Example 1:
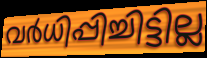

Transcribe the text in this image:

വർധിപ്പിച്ചിട്ടില്ല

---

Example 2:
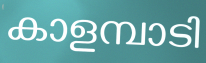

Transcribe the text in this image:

കാളമ്പാടി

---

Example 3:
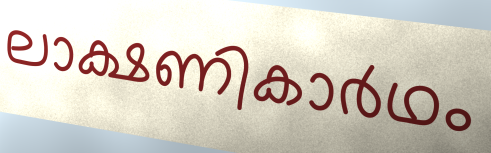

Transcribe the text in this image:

ലാക്ഷണികാർഥം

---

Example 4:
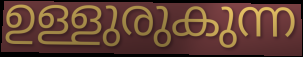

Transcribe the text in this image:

ഉള്ളുരുകുന്ന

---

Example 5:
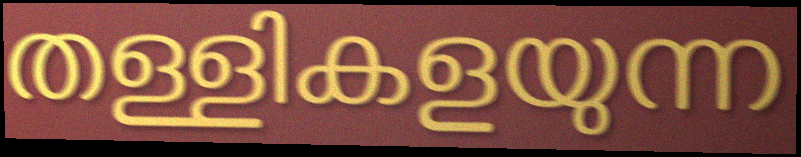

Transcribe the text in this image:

തള്ളികളയുന്ന